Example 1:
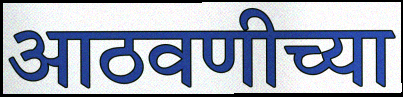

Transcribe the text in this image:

आठवणीच्या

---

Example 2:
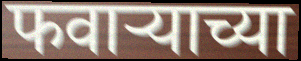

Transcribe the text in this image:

फवाऱ्याच्या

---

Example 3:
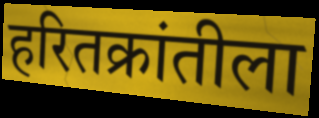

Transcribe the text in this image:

हरितक्रांतीला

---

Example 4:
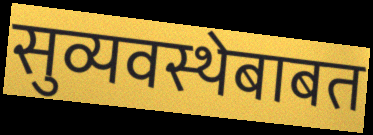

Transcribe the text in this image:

सुव्यवस्थेबाबत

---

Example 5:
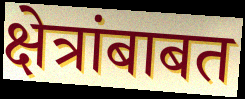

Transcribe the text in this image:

क्षेत्रांबाबत